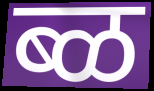
ब्ळ